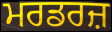
ਮਰਡਰਜ਼